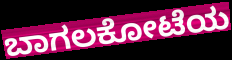
ಬಾಗಲಕೋಟೆಯ